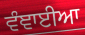
ਵੰਞਾਈਆ